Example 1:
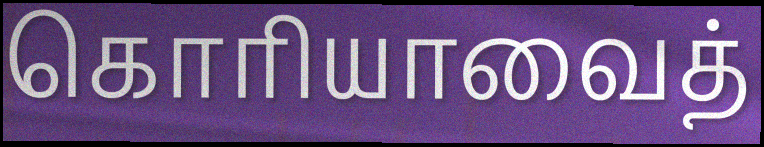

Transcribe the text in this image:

கொரியாவைத்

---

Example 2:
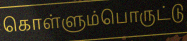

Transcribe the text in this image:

கொள்ளும்பொருட்டு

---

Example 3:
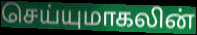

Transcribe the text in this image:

செய்யுமாகலின்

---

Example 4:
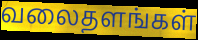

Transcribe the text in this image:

வலைதளங்கள்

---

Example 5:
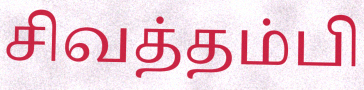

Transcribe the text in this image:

சிவத்தம்பி